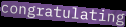
congratulating